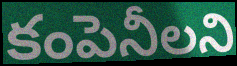
కంపెనీలని